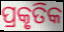
ପ୍ରକୃତିକ